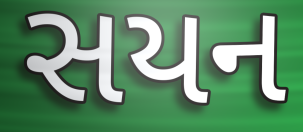
સયન